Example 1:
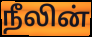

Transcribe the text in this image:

நீலின்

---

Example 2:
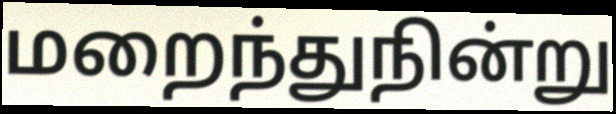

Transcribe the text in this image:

மறைந்துநின்று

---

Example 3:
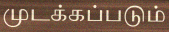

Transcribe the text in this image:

முடக்கப்படும்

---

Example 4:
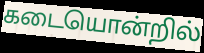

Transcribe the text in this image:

கடையொன்றில்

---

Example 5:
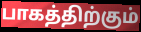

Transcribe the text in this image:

பாகத்திற்கும்